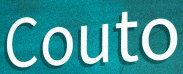
Couto